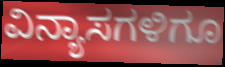
ವಿನ್ಯಾಸಗಳಿಗೂ